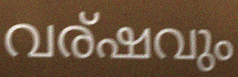
വര്ഷവും